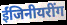
ईंजिनीयरींग